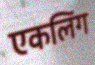
एकलिंग